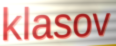
klasov